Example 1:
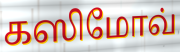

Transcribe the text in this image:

கஸிமோவ்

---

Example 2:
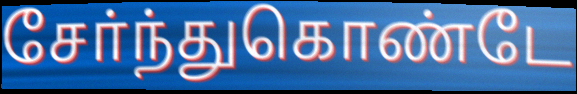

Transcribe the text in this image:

சேர்ந்துகொண்டே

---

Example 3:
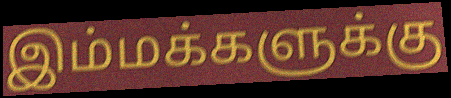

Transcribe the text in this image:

இம்மக்களுக்கு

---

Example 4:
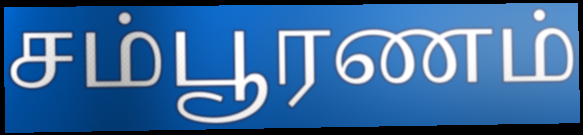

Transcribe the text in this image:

சம்பூரணம்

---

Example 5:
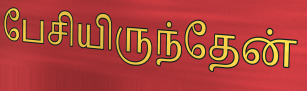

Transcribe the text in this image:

பேசியிருந்தேன்